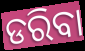
ଡରିବା